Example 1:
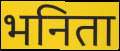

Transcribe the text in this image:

भनिता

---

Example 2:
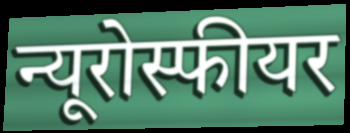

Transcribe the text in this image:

न्यूरोस्फीयर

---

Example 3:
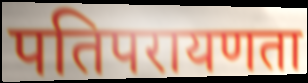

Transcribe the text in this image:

पतिपरायणता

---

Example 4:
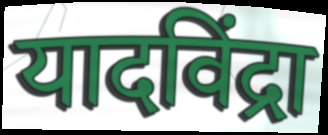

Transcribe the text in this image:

यादविंद्रा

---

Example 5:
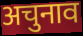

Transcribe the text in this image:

अचुनाव